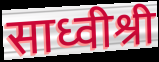
साध्वीश्री